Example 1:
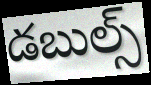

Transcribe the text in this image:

డబుల్స్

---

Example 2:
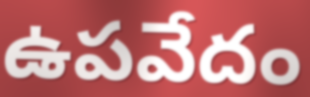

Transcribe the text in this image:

ఉపవేదం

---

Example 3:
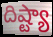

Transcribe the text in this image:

దిష్ట్యా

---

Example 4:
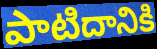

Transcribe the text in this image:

పాటిదానికి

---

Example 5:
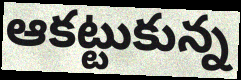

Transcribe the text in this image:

ఆకట్టుకున్న